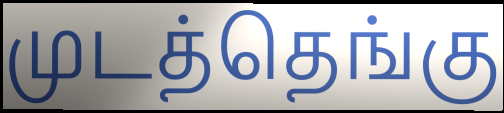
முடத்தெங்கு